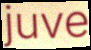
juve